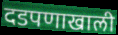
दडपणाखाली